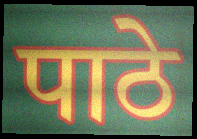
पाठे